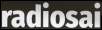
radiosai